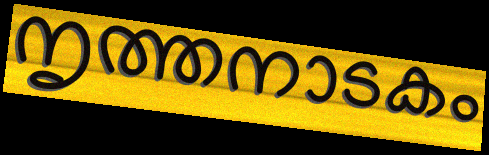
നൃത്തനാടകം